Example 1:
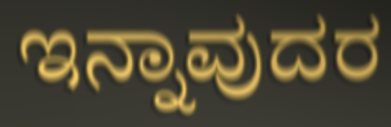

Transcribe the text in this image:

ಇನ್ನಾವುದರ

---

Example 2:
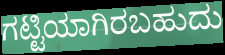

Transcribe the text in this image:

ಗಟ್ಟಿಯಾಗಿರಬಹುದು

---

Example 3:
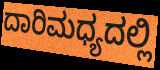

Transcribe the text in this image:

ದಾರಿಮಧ್ಯದಲ್ಲಿ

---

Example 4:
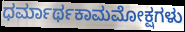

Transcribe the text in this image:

ಧರ್ಮಾರ್ಥಕಾಮಮೋಕ್ಷಗಳು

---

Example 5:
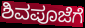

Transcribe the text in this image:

ಶಿವಪೂಜೆಗೆ